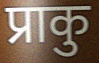
प्राकु